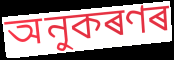
অনুকৰণৰ